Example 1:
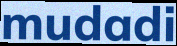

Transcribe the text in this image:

mudadi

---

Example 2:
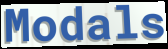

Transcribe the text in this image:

Modals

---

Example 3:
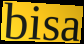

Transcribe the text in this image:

bisa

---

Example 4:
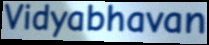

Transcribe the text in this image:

Vidyabhavan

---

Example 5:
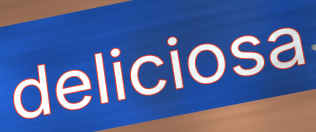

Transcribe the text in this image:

deliciosa